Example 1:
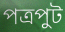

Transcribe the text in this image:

পত্রপুট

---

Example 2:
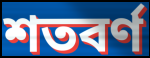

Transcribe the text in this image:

শতবর্ণ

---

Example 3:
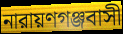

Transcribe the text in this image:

নারায়ণগঞ্জবাসী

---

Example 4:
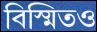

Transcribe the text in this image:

বিস্মিতও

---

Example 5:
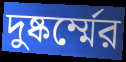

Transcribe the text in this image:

দুষ্কর্ম্মের